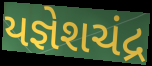
યજ્ઞેશચંદ્ર